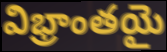
విభ్రాంతయై